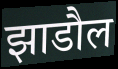
झाडौल